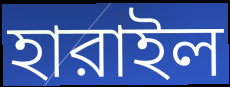
হারাইল